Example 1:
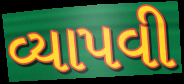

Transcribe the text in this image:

વ્યાપવી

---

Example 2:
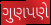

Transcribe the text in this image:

ગુણપણે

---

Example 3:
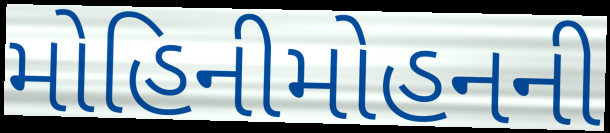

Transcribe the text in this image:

મોહિનીમોહનની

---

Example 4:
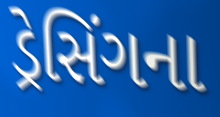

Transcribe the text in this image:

ડ્રેસિંગના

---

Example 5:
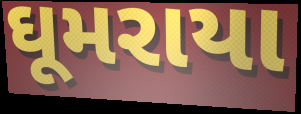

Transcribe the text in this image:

ઘૂમરાયા